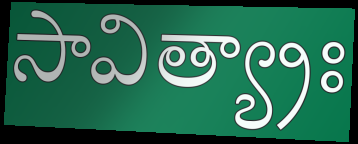
సావిత్య్రాః